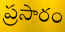
ప్రసారం